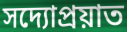
সদ্যোপ্রয়াত